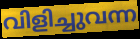
വിളിച്ചുവന്ന